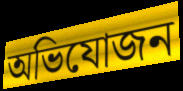
অভিযোজন